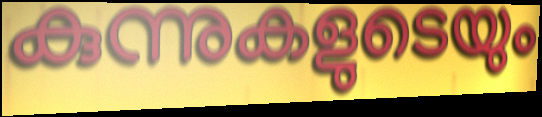
കുന്നുകളുടെയും